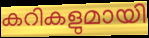
കറികളുമായി